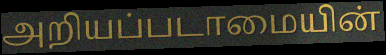
அறியப்படாமையின்